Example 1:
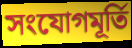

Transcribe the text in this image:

সংযোগমূর্তি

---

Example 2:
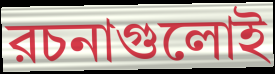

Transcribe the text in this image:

রচনাগুলোই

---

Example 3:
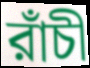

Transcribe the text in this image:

রাঁচী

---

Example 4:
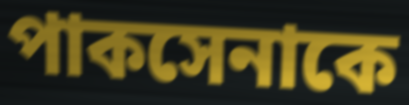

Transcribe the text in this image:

পাকসেনাকে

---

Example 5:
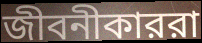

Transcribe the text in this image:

জীবনীকাররা